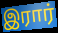
இரார்